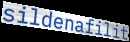
sildenafilit